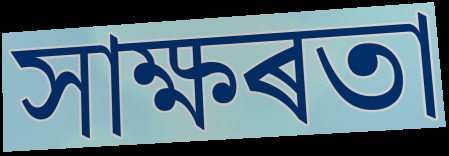
সাক্ষৰতা